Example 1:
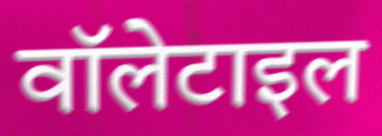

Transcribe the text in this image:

वॉलेटाइल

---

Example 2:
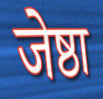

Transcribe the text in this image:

जेष्ठा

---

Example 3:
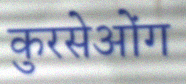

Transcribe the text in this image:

कुरसेओंग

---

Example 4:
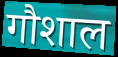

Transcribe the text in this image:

गौशाल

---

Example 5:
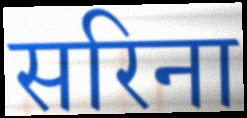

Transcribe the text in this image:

सरिना